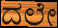
ದಲೇ